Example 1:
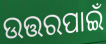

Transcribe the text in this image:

ଉତ୍ତରପାଇଁ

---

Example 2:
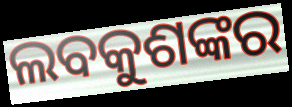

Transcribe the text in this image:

ଲବକୁଶଙ୍କର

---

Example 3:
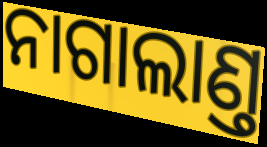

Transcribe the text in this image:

ନାଗାଲାଣ୍ତ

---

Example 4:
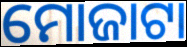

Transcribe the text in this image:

ମୋଜାଟା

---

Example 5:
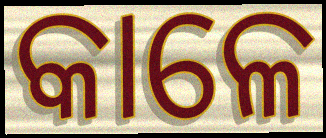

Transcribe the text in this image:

କାଳେ